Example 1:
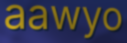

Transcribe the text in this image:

aawyo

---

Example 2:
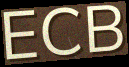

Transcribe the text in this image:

ECB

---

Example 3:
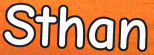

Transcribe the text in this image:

Sthan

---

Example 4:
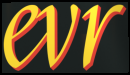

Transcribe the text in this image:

evr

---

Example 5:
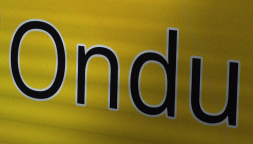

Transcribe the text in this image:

Ondu